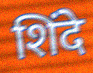
शिंदे